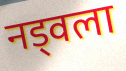
नड्वला